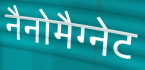
नैनोमैग्नेट